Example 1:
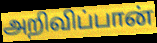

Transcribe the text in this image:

அறிவிப்பான்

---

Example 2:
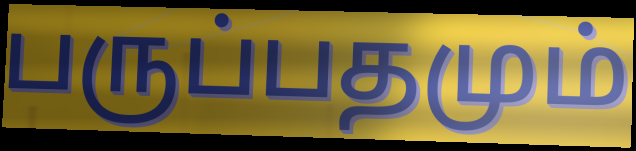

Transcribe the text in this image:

பருப்பதமும்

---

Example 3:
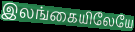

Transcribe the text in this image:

இலங்கையிலேயே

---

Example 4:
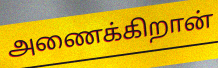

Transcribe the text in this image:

அணைக்கிறான்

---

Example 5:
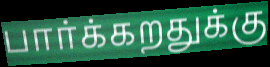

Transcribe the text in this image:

பார்க்கறதுக்கு